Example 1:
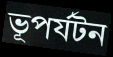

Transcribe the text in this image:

ভূপর্যটন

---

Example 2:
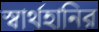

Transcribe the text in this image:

স্বার্থহানির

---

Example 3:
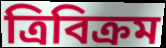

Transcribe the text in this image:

ত্রিবিক্রম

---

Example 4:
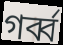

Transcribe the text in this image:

গর্ব্ব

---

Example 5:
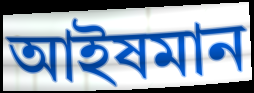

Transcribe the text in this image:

আইষমান